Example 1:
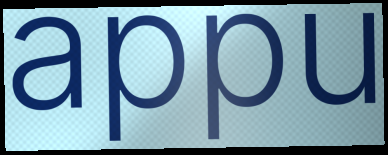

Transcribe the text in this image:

appu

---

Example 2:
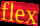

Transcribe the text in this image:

flex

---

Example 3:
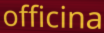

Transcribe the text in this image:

officina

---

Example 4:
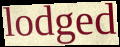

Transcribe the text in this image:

lodged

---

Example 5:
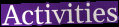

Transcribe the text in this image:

Activities